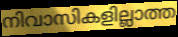
നിവാസികളില്ലാത്ത